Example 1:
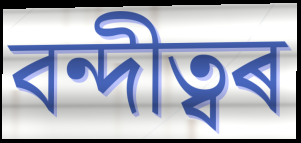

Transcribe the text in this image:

বন্দীত্বৰ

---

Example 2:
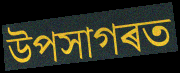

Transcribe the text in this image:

উপসাগৰত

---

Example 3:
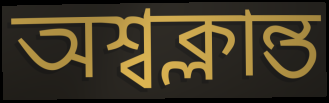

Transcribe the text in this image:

অশ্বক্লান্ত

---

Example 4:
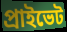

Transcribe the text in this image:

প্ৰাইভেট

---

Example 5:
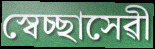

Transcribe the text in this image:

স্বেচ্ছাসেৱী